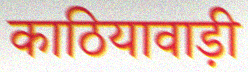
काठियावाड़ी